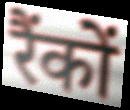
रैंकों